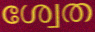
ശ്വേത